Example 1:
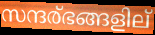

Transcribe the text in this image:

സന്ദര്ഭങ്ങളില്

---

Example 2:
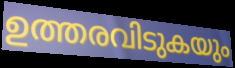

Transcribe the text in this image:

ഉത്തരവിടുകയും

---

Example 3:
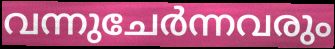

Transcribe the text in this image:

വന്നുചേർന്നവരും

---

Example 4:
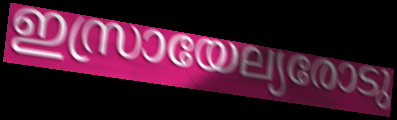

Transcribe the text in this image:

ഇസ്രായേല്യരോടു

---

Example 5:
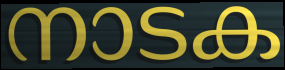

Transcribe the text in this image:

നാടക